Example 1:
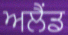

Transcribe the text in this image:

ਅਲੈਂਡ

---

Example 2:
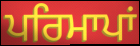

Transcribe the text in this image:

ਪਰਿਮਾਪਾਂ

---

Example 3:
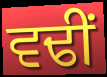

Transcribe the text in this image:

ਵਢੀਂ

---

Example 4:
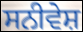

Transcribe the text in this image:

ਸਨੀਵੇਸ਼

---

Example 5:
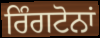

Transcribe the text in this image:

ਰਿੰਗਟੋਨਾਂ